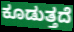
ಕೂಡುತ್ತದೆ